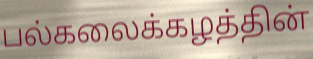
பல்கலைக்கழத்தின்